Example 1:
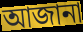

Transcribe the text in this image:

আজানা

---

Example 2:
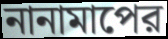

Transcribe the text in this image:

নানামাপের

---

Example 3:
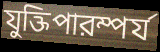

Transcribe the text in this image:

যুক্তিপারম্পর্য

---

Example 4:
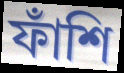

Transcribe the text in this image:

ফাঁশি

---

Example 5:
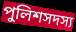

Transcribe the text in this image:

পুলিশসদস্য